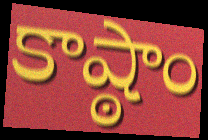
కాష్ఠాం